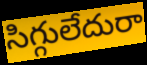
సిగ్గులేదురా